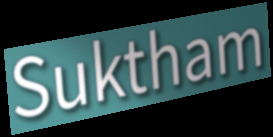
Suktham